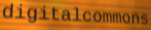
digitalcommons